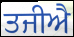
ਤਜੀਐ